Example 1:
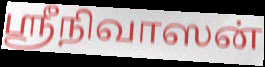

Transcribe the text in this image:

ஸ்ரீநிவாஸன்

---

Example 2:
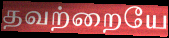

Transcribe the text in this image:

தவற்றையே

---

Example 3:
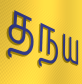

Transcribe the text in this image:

தநய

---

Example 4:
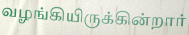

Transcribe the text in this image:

வழங்கியிருக்கின்றார்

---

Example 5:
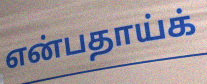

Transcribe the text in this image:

என்பதாய்க்